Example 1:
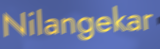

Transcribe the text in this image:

Nilangekar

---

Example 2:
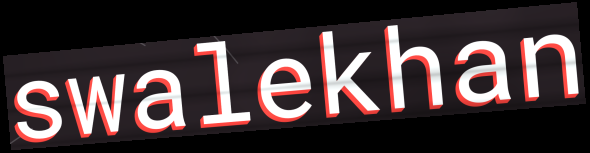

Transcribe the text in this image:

swalekhan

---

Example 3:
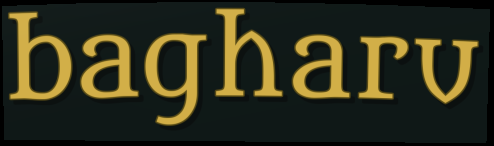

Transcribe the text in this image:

bagharu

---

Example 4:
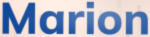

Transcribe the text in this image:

Marion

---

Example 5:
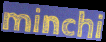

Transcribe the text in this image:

minchi